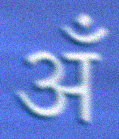
अँ